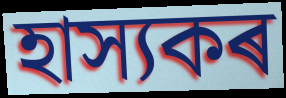
হাস্যকৰ